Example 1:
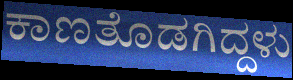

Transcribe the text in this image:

ಕಾಣತೊಡಗಿದ್ದಳು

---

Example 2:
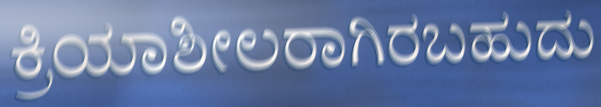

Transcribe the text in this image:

ಕ್ರಿಯಾಶೀಲರಾಗಿರಬಹುದು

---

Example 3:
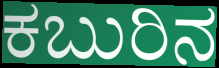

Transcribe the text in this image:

ಕಬುರಿನ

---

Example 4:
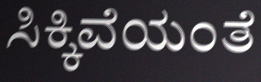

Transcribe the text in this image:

ಸಿಕ್ಕಿವೆಯಂತೆ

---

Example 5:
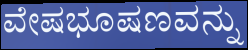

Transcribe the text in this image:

ವೇಷಭೂಷಣವನ್ನು